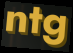
ntg